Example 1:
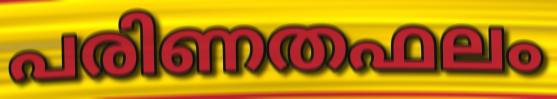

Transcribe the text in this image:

പരിണതഫലം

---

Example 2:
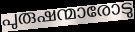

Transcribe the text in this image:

പുരുഷന്മാരോടു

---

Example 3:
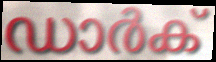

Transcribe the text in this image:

ഡാർക്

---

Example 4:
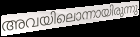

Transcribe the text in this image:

അവയിലൊന്നായിരുന്നു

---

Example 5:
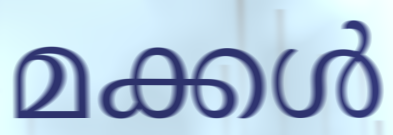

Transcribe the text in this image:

മക്കൾ